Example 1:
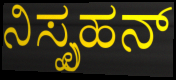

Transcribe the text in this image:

ನಿಸ್ಪೃಹನ್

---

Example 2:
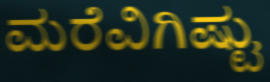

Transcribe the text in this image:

ಮರೆವಿಗಿಷ್ಟು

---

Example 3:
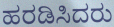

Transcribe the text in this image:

ಹರಡಿಸಿದರು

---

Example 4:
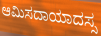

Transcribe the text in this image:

ಆಮಿಸದಾಯಾದಸ್ಸ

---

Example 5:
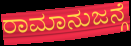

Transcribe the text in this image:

ರಾಮಾನುಜನ್ಗೆ